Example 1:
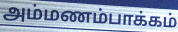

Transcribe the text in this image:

அம்மணம்பாக்கம்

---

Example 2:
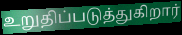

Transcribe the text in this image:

உறுதிப்படுத்துகிறார்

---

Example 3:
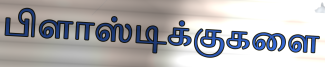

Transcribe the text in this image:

பிளாஸ்டிக்குகளை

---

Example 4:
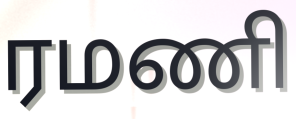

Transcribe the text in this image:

ரமணி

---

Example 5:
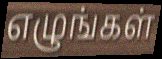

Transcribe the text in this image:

எழுங்கள்